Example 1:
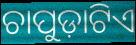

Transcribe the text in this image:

ଚାପୁଡ଼ାଟିଏ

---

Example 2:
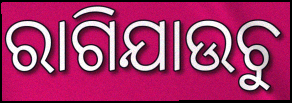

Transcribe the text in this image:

ରାଗିଯାଉଚୁ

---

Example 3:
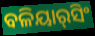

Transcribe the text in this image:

ବଳିୟାର୍‌ସିଂ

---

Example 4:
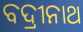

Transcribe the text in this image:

ବଦ୍ରୀନାଥ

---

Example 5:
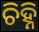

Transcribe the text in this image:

ଚିହ୍ନି